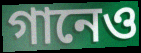
গানেও